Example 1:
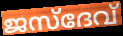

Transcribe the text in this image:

ജസ്ദേവ്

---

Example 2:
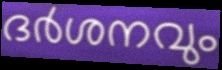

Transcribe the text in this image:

ദർശനവും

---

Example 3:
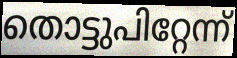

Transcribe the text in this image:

തൊട്ടുപിറ്റേന്ന്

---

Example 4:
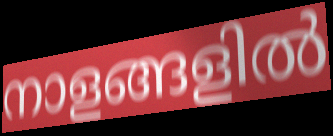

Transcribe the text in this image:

നാളങ്ങളിൽ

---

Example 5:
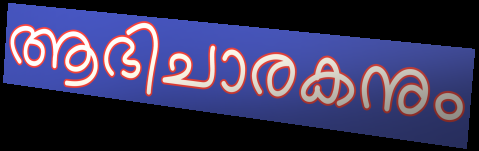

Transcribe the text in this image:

ആഭിചാരകനും